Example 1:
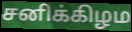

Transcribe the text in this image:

சனிக்கிழம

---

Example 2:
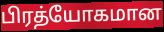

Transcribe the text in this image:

பிரத்யோகமான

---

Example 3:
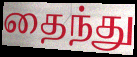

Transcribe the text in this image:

தைந்து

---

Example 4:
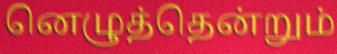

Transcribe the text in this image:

னெழுத்தென்றும்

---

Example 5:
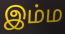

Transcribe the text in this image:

இம்ம